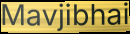
Mavjibhai